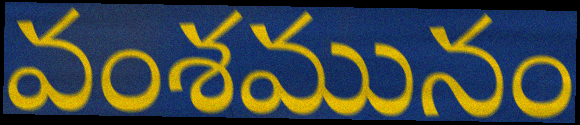
వంశమునం